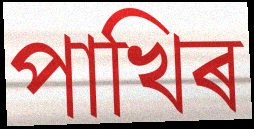
পাখিৰ